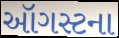
ઑગસ્ટના